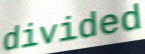
divided